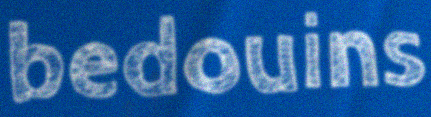
bedouins